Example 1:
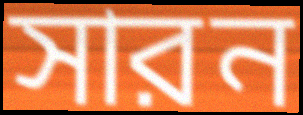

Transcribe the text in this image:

সারন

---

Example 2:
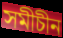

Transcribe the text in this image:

সমীচীন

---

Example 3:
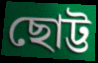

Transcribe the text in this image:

ছোট্ট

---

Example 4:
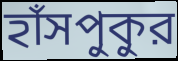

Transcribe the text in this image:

হাঁসপুকুর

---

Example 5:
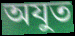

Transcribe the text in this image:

অযুত